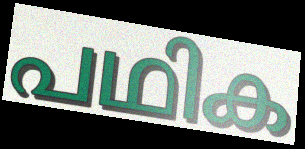
പഥിക